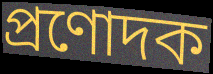
প্রণোদক